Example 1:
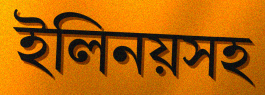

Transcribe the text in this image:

ইলিনয়সহ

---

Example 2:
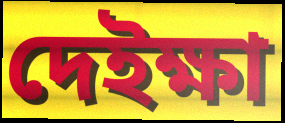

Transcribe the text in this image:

দেইক্ষা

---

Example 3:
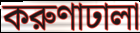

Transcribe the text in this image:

করুণাঢালা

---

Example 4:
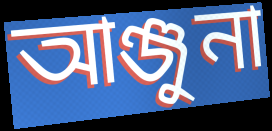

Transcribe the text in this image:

আঞ্জুনা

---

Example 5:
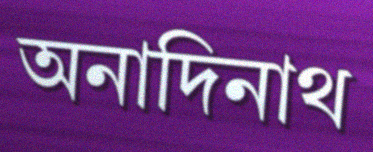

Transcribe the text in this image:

অনাদিনাথ